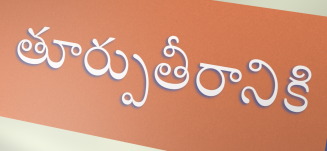
తూర్పుతీరానికి